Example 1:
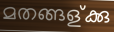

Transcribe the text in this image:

മതങ്ങള്ക്കു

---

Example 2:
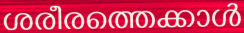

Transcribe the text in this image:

ശരീരത്തെക്കാൾ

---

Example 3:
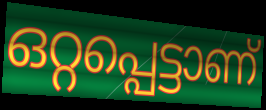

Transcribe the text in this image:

ഒറ്റപ്പെട്ടാണ്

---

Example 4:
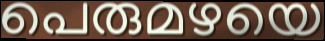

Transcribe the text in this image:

പെരുമഴയെ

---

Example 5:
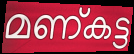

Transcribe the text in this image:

മണ്കട്ട